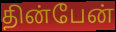
தின்பேன்